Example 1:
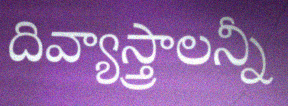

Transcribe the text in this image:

దివ్యాస్త్రాలన్నీ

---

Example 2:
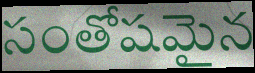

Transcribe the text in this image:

సంతోషమైన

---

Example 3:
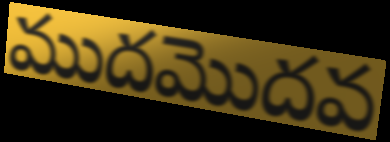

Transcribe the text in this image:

ముదమొదవ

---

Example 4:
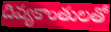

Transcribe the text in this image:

దివ్యకాంతులతో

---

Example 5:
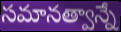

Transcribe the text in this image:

సమానత్వాన్నే